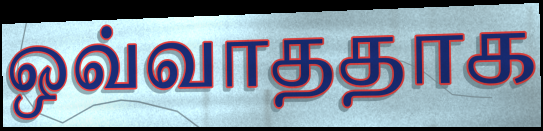
ஒவ்வாததாக